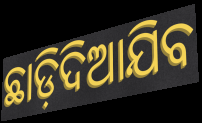
ଛାଡ଼ିଦିଆଯିବ